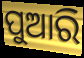
ପୁଆରି